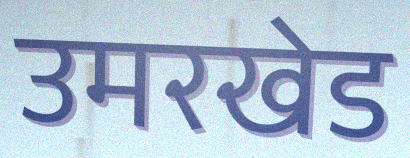
उमरखेड